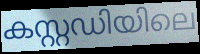
കസ്റ്റഡിയിലെ